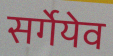
सर्गेयेव